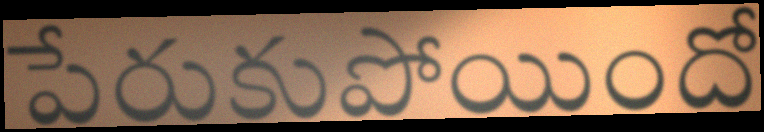
పేరుకుపోయిందో